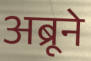
अब्रूने